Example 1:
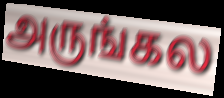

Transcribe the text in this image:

அருங்கல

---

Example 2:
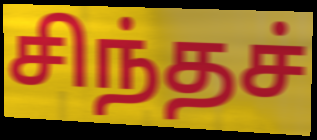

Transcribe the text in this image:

சிந்தச்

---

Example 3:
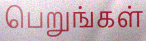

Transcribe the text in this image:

பெறுங்கள்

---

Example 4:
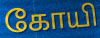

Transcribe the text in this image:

கோயி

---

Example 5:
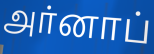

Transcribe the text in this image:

அர்னாப்